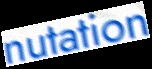
nutation